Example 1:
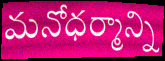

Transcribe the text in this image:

మనోధర్మాన్ని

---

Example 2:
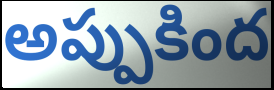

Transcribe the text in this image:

అప్పుకింద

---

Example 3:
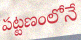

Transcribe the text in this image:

పట్టణంలోనే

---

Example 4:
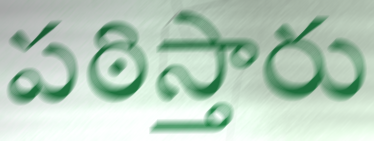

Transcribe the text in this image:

పఠిస్తారు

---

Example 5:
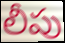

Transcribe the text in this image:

లీపు